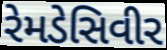
રેમડેસિવીર